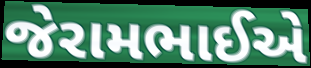
જેરામભાઈએ